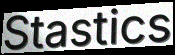
Stastics